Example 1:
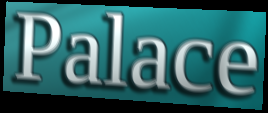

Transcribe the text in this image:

Palace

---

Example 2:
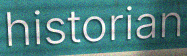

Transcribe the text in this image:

historian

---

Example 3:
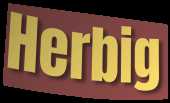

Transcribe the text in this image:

Herbig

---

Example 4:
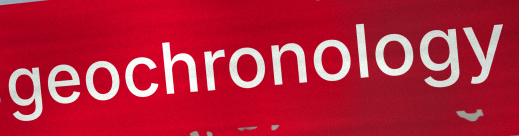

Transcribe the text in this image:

geochronology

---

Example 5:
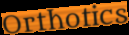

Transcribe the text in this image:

Orthotics